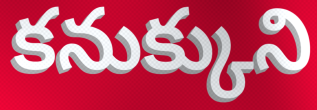
కనుక్కుని